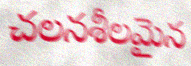
చలనశీలమైన